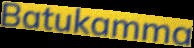
Batukamma